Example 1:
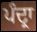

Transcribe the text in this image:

ਪੰਦ੍ਰਾ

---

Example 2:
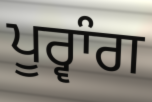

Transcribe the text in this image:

ਪੂਰ੍ਵਾੰਗ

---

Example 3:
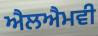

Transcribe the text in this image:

ਐਲਐਮਵੀ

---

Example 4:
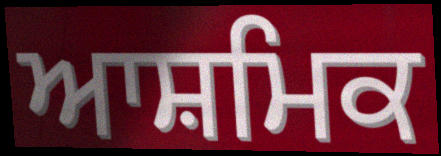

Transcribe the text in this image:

ਆਸ਼ਮਿਕ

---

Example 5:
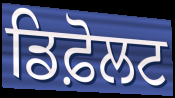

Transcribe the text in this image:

ਡਿਫ਼ੋਲਟ